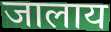
जालाय